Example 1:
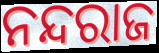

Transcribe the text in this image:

ନନ୍ଦରାଜ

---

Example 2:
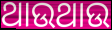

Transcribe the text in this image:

ଥାଉଥାଉ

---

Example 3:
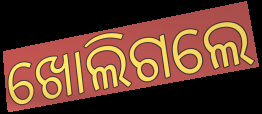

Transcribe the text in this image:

ଖୋଲିଗଲେ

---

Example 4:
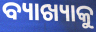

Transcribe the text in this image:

ବ୍ୟାଖ୍ୟାକୁ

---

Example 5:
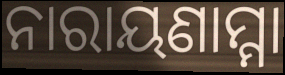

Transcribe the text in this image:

ନାରାୟଣାମ୍ମା